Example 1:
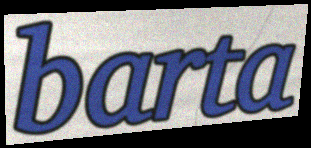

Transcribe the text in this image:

barta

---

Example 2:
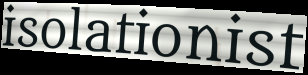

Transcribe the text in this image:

isolationist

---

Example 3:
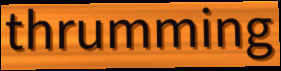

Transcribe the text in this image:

thrumming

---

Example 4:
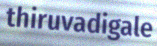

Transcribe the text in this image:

thiruvadigale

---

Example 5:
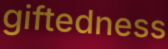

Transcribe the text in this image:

giftedness